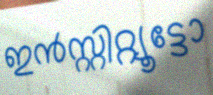
ഇൻസ്റ്റിറ്റ്യൂട്ടോ